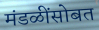
मंडळींसोबत